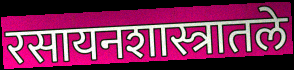
रसायनशास्त्रातले